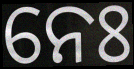
ନେଃ